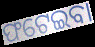
ଫଟେଇବା